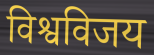
विश्वविजय